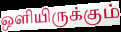
ஒளியிருக்கும்